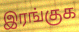
இரங்குக